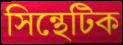
সিন্থেটিক